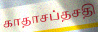
காதாசப்தசதி